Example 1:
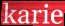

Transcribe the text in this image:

karie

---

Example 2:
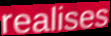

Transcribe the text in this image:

realises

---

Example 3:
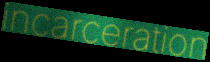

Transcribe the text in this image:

incarceration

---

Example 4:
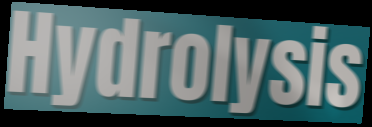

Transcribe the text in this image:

Hydrolysis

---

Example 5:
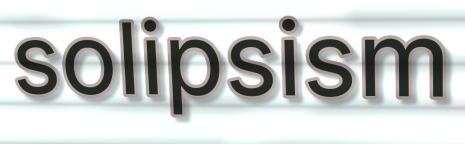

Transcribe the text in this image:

solipsism